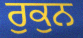
ਰੁਕੁਨ